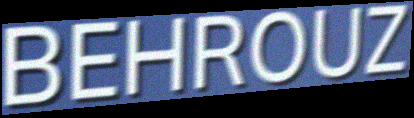
BEHROUZ